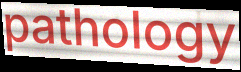
pathology